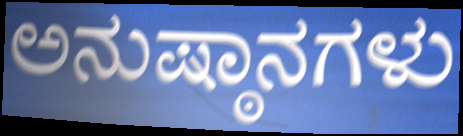
ಅನುಷ್ಠಾನಗಳು